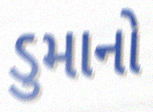
ડુમાનો